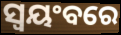
ସ୍ଵୟଂବରେ